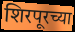
शिरपूरच्या